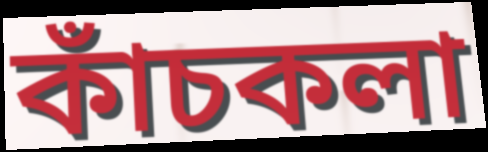
কাঁচকলা